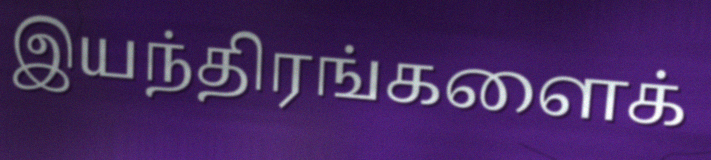
இயந்திரங்களைக்